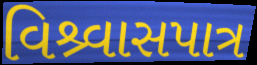
વિશ્ર્વાસપાત્ર